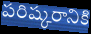
పరిష్కరానికి